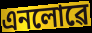
এনলোৱে